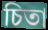
চিতা